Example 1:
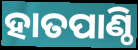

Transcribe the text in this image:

ହାତପାଣ୍ଠି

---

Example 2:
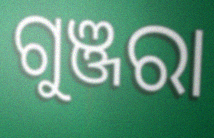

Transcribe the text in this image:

ଗୁଞ୍ଜରା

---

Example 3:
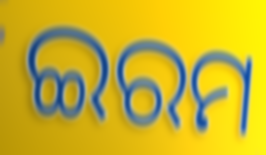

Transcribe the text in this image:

ଇରମ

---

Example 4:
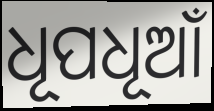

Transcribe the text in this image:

ଧୂପଧୂଆଁ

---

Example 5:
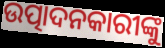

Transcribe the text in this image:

ଉତ୍ପାଦନକାରୀଙ୍କୁ